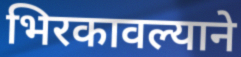
भिरकावल्याने